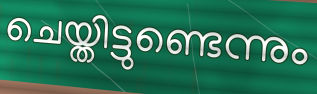
ചെയ്തിട്ടുണ്ടെന്നും